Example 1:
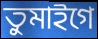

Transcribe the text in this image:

তুমাইগে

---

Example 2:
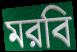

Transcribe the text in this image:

মরবি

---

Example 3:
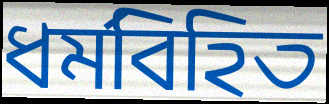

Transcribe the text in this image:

ধর্মবিহিত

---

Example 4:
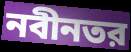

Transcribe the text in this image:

নবীনতর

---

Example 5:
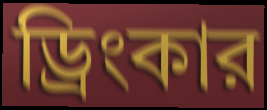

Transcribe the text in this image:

ড্রিংকার